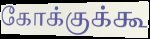
கோக்குக்கூ